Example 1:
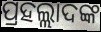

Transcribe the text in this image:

ପ୍ରହଲ୍ଲାଦଙ୍କ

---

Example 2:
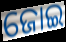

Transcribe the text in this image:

ଜୋଇ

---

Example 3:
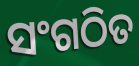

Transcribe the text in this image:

ସଂଗଠିତ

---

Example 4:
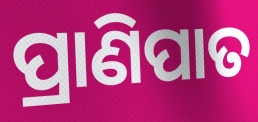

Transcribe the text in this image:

ପ୍ରାଣିପାତ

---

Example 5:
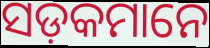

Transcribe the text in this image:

ସଡ଼କମାନେ